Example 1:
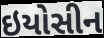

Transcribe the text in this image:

ઇયોસીન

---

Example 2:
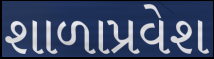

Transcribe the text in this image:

શાળાપ્રવેશ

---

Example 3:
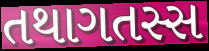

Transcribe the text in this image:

તથાગતસ્સ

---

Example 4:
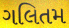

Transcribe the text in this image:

ગલિતમ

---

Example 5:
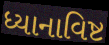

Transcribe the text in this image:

ધ્યાનાવિષ્ટ